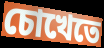
চোখেতে